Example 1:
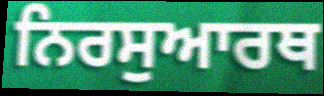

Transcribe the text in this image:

ਨਿਰਸੁਆਰਥ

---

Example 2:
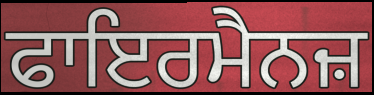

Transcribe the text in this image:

ਫਾਇਰਮੈਨਜ਼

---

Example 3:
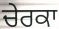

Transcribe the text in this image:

ਚੇਰਕਾ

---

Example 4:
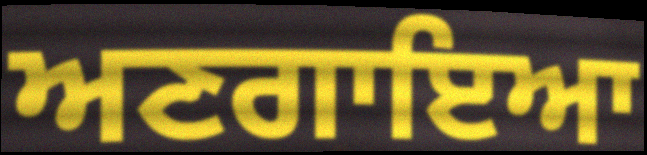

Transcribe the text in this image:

ਅਣਗਾਇਆ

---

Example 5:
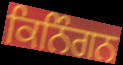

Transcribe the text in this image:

ਕਿਨਿੰਗਨ